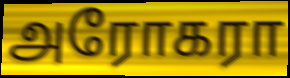
அரோகரா